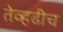
तेव्हढीच